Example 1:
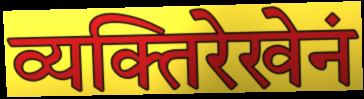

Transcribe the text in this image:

व्यक्तिरेखेनं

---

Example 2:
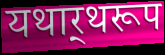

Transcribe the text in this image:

यथार्थरूप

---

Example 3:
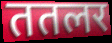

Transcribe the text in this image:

ततलर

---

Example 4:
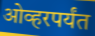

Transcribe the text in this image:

ओव्हरपर्यंत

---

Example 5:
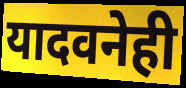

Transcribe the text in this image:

यादवनेही